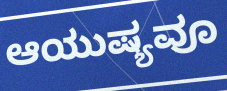
ಆಯುಷ್ಯವೂ